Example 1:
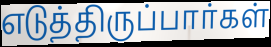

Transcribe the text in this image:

எடுத்திருப்பார்கள்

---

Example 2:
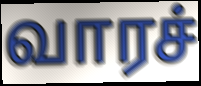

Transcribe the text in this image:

வாரச்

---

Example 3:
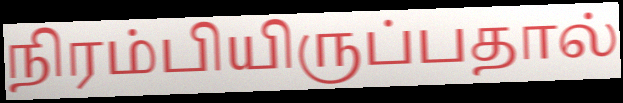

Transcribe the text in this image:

நிரம்பியிருப்பதால்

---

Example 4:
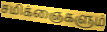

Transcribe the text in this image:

சமிக்ஞைகளும்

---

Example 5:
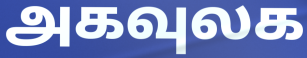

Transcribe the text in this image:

அகவுலக